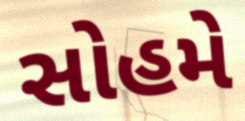
સોહમે